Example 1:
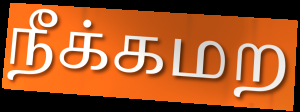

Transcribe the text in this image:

நீக்கமற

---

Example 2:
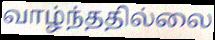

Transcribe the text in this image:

வாழ்ந்ததில்லை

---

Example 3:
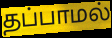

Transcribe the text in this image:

தப்பாமல்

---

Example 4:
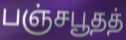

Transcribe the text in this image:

பஞ்சபூதத்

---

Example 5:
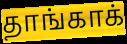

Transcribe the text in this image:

தாங்காக்